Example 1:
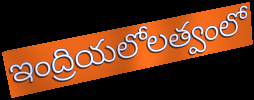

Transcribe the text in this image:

ఇంద్రియలోలత్వంలో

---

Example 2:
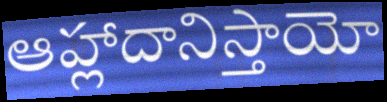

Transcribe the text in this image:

ఆహ్లాదానిస్తాయో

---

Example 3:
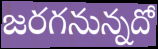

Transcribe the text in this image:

జరగనున్నదో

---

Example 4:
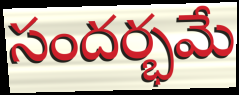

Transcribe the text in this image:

సందర్భమే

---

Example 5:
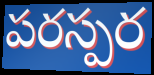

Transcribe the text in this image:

పరస్పర